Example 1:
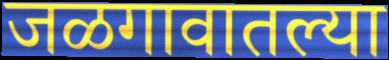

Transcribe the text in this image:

जळगावातल्या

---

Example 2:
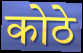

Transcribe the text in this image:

कोठे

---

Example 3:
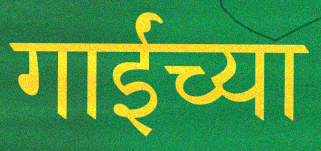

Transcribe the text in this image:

गाईंच्या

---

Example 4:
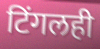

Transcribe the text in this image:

टिंगलही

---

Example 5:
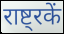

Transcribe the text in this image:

राष्ट्रकें